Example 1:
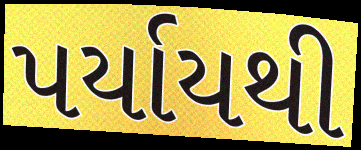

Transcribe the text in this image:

પર્યાયથી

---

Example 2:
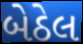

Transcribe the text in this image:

બેઠેલ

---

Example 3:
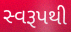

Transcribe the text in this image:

સ્વરૂપથી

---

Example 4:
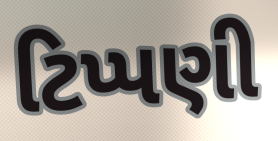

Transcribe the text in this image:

ટિપ્પણી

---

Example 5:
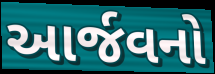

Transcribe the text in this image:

આર્જવનો